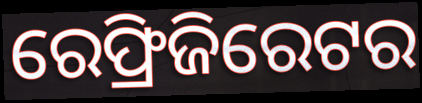
ରେଫ୍ରିଜିରେଟର